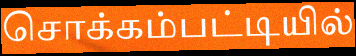
சொக்கம்பட்டியில்